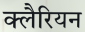
क्लैरियन